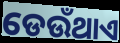
ଡେଉଁଥାଏ